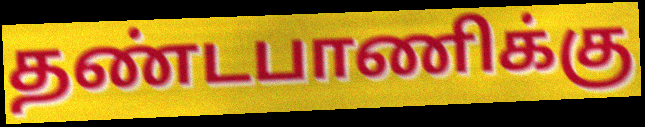
தண்டபாணிக்கு